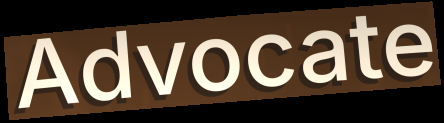
Advocate